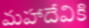
మహాదేవికి